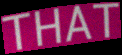
THAT